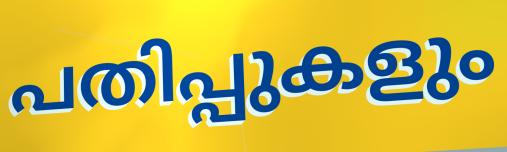
പതിപ്പുകളും